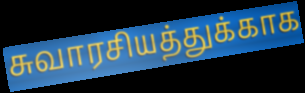
சுவாரசியத்துக்காக